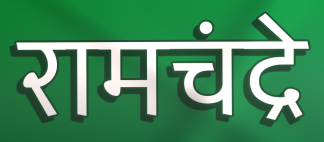
रामचंद्रे